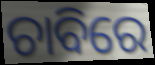
ଚାବିରେ